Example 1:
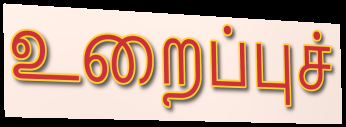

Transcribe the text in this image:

உறைப்புச்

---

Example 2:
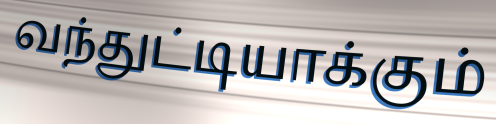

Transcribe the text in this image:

வந்துட்டியாக்கும்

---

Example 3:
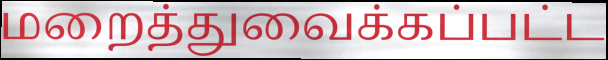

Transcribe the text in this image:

மறைத்துவைக்கப்பட்ட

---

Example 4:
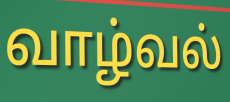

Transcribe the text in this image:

வாழ்வல்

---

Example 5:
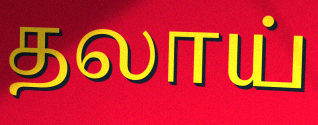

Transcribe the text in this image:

தலாய்